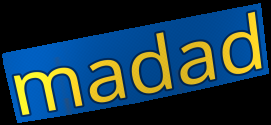
madad